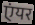
एंयर